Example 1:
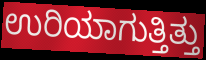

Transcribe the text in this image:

ಉರಿಯಾಗುತ್ತಿತ್ತು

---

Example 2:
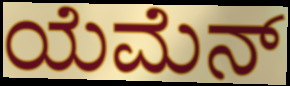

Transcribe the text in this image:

ಯೆಮೆನ್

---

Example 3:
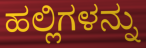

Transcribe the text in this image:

ಹಲ್ಲಿಗಳನ್ನು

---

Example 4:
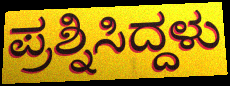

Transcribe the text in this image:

ಪ್ರಶ್ನಿಸಿದ್ದಳು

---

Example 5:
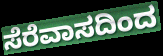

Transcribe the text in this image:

ಸೆರೆವಾಸದಿಂದ